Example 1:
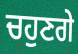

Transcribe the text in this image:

ਚਹੁਣਗੇ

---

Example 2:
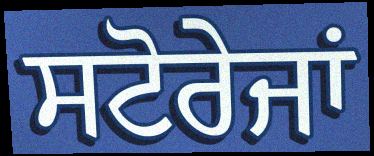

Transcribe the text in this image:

ਸਟੋਰੇਜਾਂ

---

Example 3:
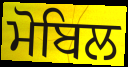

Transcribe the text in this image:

ਮੋਬਿਲ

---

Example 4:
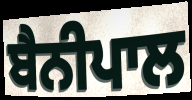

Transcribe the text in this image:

ਬੈਨੀਪਾਲ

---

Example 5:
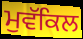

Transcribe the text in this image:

ਮੁਵੱਕਿਲ